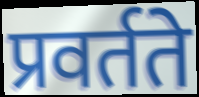
प्रवर्तते